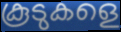
കൂടുകളെ